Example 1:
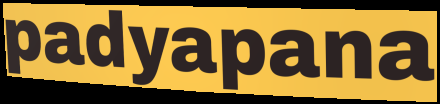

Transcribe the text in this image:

padyapana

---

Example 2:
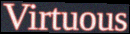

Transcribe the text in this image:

Virtuous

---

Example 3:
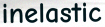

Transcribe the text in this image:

inelastic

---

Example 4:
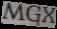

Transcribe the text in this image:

MGX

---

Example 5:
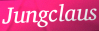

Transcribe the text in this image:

Jungclaus